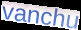
vanchu